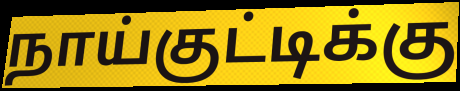
நாய்குட்டிக்கு